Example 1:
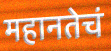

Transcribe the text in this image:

महानतेचं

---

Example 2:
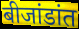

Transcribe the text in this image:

बीजांडांत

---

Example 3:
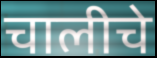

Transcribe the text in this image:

चालीचे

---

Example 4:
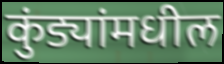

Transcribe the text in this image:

कुंड्यांमधील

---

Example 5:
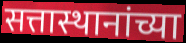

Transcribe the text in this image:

सत्तास्थानांच्या